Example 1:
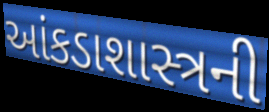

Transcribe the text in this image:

આંકડાશાસ્ત્રની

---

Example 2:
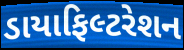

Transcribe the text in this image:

ડાયાફિલ્ટરેશન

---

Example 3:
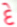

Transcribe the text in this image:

દે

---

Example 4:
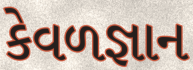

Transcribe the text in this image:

કેવળજ્ઞાન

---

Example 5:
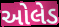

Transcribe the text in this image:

ઓલેડ